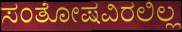
ಸಂತೋಷವಿರಲಿಲ್ಲ